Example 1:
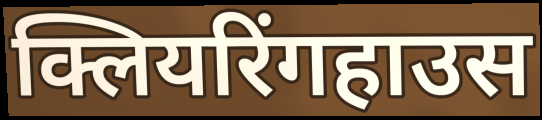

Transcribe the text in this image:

क्लियरिंगहाउस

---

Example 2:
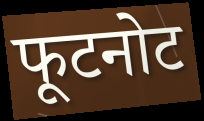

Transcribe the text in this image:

फूटनोट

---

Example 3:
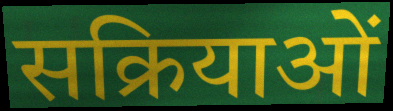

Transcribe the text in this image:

सक्रियाओं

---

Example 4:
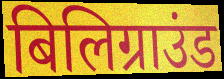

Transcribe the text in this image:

बिलिग्राउंड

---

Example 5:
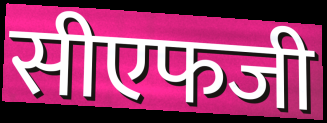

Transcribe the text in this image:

सीएफजी